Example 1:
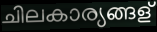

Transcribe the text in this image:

ചിലകാര്യങ്ങള്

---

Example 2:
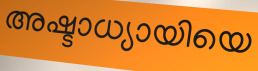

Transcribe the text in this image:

അഷ്ടാധ്യായിയെ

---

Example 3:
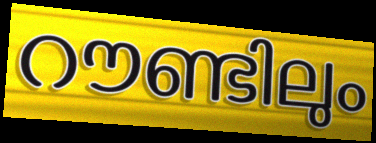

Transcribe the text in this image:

റൗണ്ടിലും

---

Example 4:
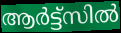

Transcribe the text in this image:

ആർട്ട്സിൽ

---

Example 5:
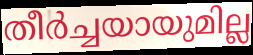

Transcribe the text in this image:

തീർച്ചയായുമില്ല